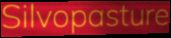
Silvopasture